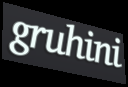
gruhini